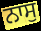
ਨਾਸੁ